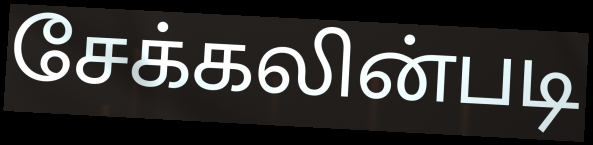
சேக்கலின்படி